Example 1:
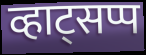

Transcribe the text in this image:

व्हाट्सप्प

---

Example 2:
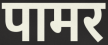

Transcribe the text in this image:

पामर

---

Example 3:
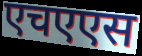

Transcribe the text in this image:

एचएएस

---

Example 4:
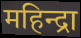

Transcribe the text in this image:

महिन्द्रा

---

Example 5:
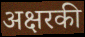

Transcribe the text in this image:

अक्षरकी